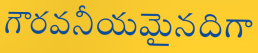
గౌరవనీయమైనదిగా